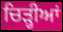
ਚਿੜ੍ਹੀਆਂ